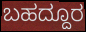
ಬಹದ್ದೂರ